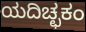
ಯದಿಚ್ಛಕಂ